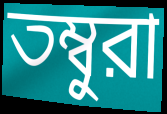
তম্বুরা